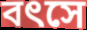
বৎসে